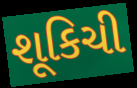
શૂકિચી